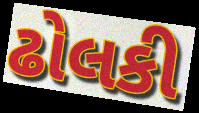
ઢોલકી